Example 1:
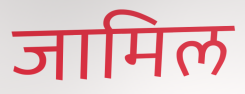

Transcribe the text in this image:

जामिल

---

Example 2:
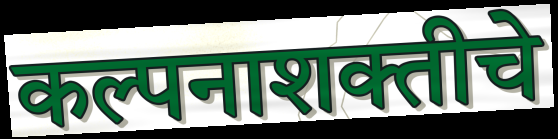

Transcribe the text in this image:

कल्पनाशक्तीचे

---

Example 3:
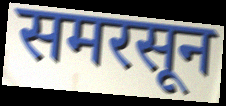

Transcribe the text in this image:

समरसून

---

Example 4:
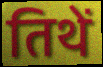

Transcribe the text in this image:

तिथें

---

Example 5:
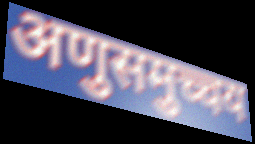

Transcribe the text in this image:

अणुसमुच्चय